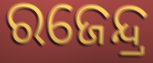
ରଜେନ୍ଦ୍ର